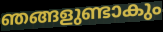
ഞങ്ങളുണ്ടാകും